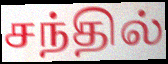
சந்தில்